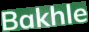
Bakhle